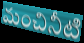
మంచినీటి